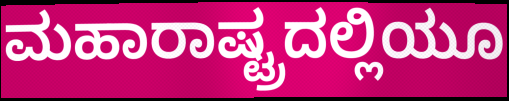
ಮಹಾರಾಷ್ಟ್ರದಲ್ಲಿಯೂ